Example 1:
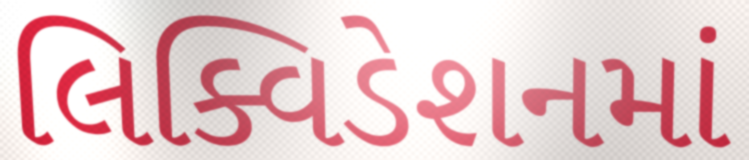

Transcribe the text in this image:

લિક્વિડેશનમાં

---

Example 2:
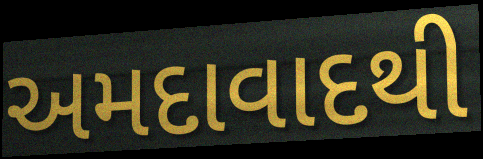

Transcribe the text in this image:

અમદાવાદથી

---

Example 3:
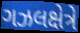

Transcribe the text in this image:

ગઝલક્ષેત્રે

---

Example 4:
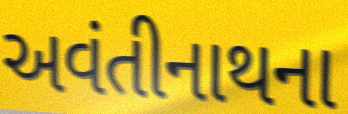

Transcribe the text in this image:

અવંતીનાથના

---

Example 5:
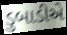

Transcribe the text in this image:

ડુબાડીએ